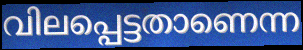
വിലപ്പെട്ടതാണെന്ന